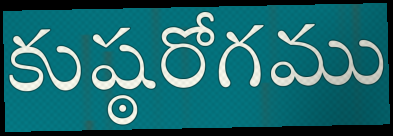
కుష్ఠరోగము